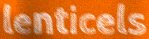
lenticels